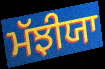
ਮੱਝੀਯਾ